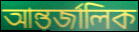
আন্তর্জালিক